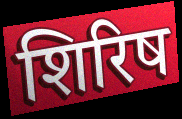
शिरिष